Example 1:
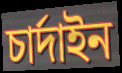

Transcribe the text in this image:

চাৰ্দাইন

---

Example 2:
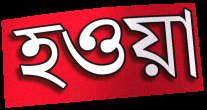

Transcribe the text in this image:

হওয়া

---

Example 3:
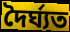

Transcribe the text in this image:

দৈৰ্ঘ্যত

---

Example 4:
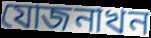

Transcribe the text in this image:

যোজনাখন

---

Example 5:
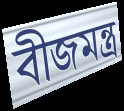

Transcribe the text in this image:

বীজমন্ত্ৰ